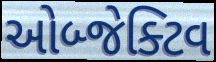
ઓબ્જેક્ટિવ